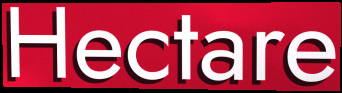
Hectare